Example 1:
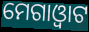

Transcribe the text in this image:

ମେଗାଓ୍ଵାଟ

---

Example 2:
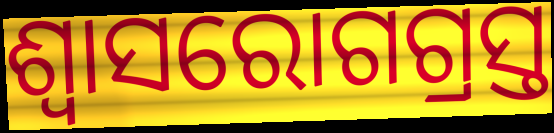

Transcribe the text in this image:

ଶ୍ୱାସରୋଗଗ୍ରସ୍ତ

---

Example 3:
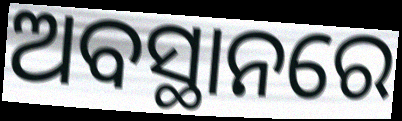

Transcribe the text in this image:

ଅବସ୍ଥାନରେ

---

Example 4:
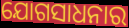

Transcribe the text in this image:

ଯୋଗସାଧନାର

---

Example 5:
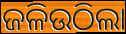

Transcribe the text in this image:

ଜଳିଉଠିଲା